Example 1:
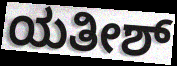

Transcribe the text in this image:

ಯತೀಶ್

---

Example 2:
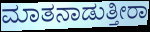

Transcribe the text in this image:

ಮಾತನಾಡುತ್ತೀರಾ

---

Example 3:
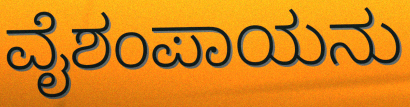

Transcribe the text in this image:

ವೈಶಂಪಾಯನು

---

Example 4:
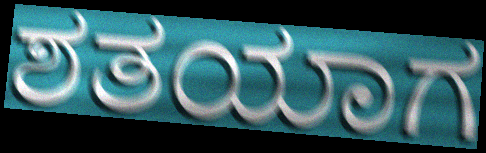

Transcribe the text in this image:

ಶತಯಾಗ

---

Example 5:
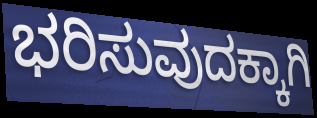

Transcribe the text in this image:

ಭರಿಸುವುದಕ್ಕಾಗಿ